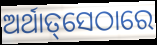
ଅର୍ଥାତ୍‌ସେଠାରେ